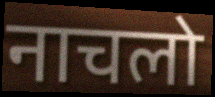
नाचलो